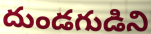
దుండగుడిని